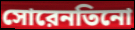
সোরেনতিনো